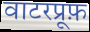
वाटरप्रूफ़